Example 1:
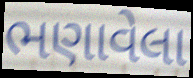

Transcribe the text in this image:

ભણાવેલા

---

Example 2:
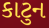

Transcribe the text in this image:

કાટુન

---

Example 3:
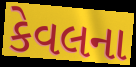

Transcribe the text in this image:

કેવલના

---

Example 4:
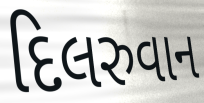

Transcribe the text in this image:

દિલરુવાન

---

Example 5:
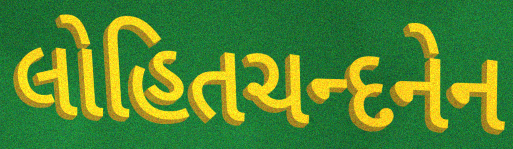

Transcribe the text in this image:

લોહિતચન્દનેન